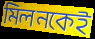
মিলনকেই